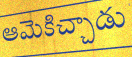
ఆమెకిచ్చాడు